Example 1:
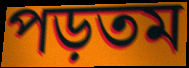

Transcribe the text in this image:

পড়তম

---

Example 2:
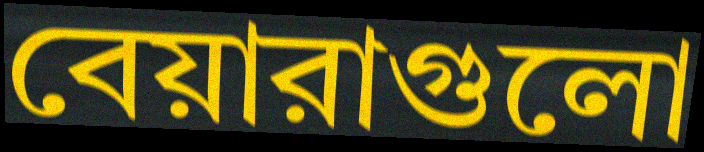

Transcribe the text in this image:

বেয়ারাগুলো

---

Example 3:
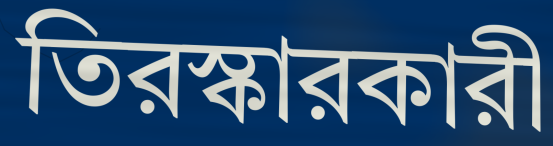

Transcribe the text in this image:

তিরস্কারকারী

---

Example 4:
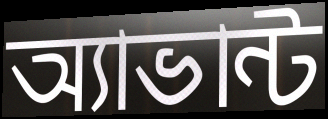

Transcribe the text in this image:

অ্যাভান্ট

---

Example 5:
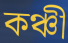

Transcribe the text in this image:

কঞ্চী